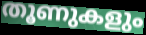
തൂണുകളും